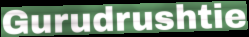
Gurudrushtie